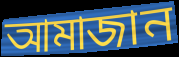
আমাজান